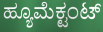
ಹ್ಯೂಮೆಕ್ಟಂಟ್